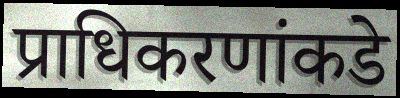
प्राधिकरणांकडे